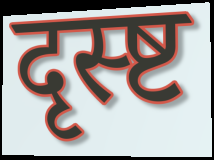
दृस्ष्ट